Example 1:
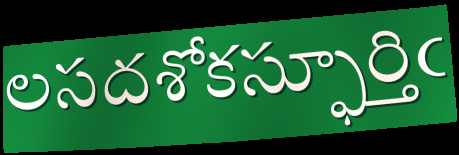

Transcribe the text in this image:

లసదశోకస్ఫూర్తిఁ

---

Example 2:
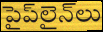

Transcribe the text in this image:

పైప్‌లైన్‌లు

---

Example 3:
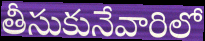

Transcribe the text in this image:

తీసుకునేవారిలో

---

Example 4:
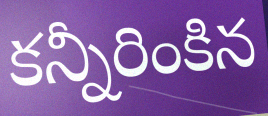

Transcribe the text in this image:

కన్నీరింకిన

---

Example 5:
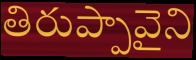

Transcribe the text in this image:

తిరుప్పావైని